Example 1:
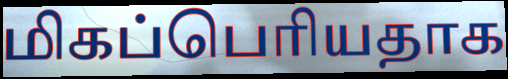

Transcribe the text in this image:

மிகப்பெரியதாக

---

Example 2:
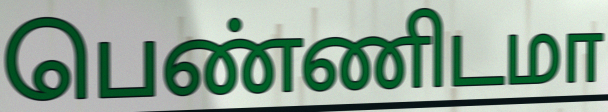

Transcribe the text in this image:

பெண்ணிடமா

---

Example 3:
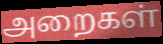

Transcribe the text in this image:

அறைகள்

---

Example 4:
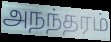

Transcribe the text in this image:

அநந்தரம்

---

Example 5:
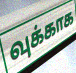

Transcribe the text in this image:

வுக்காக